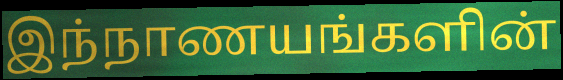
இந்நாணயங்களின்